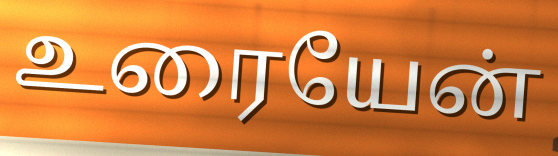
உரையேன்